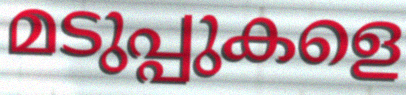
മടുപ്പുകളെ